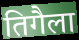
तिगैला